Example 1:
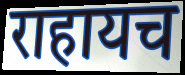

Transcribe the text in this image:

राहायच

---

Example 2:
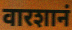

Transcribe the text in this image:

वारशानं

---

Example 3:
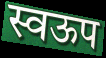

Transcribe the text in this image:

स्वऊप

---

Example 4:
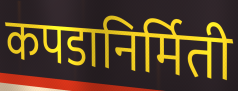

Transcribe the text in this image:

कपडानिर्मिती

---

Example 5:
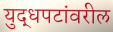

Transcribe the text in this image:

युद्धपटांवरील